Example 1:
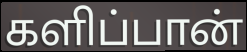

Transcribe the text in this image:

களிப்பான்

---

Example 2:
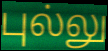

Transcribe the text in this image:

புல்லு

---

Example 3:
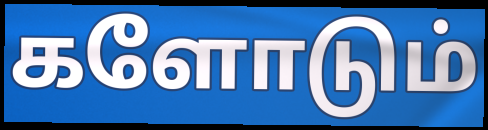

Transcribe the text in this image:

களோடும்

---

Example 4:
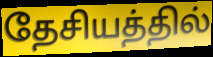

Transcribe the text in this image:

தேசியத்தில்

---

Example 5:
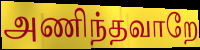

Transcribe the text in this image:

அணிந்தவாறே